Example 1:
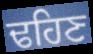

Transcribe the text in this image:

ਢਹਿਣ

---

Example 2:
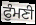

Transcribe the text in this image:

ਫੁੰਮਣੀ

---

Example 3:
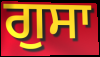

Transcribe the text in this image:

ਗੁਸਾ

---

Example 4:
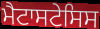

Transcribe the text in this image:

ਮੈਟਾਸਟੇਸਿਸ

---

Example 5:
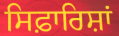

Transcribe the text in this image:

ਸਿਫ਼ਾਰਿਸ਼ਾਂ